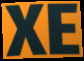
XE